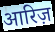
आरिज़